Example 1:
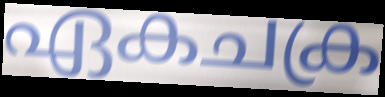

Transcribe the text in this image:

ഏകചക്ര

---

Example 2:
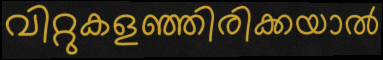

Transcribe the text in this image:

വിറ്റുകളഞ്ഞിരിക്കയാൽ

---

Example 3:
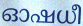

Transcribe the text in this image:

ഓഷധീ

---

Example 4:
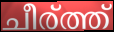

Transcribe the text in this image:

ചീര്ത്ത്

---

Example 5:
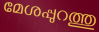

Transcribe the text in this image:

മേശപ്പുറത്തു